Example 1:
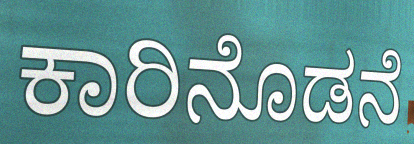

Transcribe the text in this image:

ಕಾರಿನೊಡನೆ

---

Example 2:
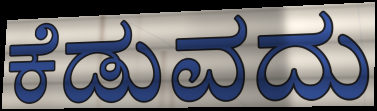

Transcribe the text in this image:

ಕೆಡುವದು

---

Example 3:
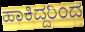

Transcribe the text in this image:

ಹಾಕಿದ್ದರಿಂದ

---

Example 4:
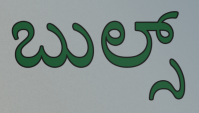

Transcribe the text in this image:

ಬುಲ್ಸ್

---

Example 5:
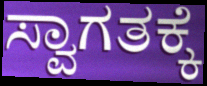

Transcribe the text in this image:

ಸ್ವಾಗತಕ್ಕೆ